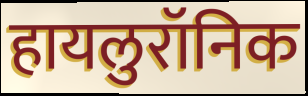
हायलुरॉनिक